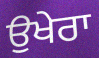
ਉਖੇਰਾ